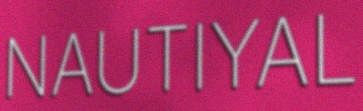
NAUTIYAL